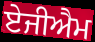
ਏਜੀਐਮ